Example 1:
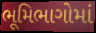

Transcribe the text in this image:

ભૂમિભાગોમાં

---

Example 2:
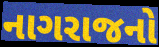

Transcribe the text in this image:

નાગરાજનો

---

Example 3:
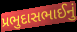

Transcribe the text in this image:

પ્રભુદાસભાઈનું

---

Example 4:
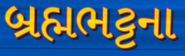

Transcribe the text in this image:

બ્રહ્મભટ્ટના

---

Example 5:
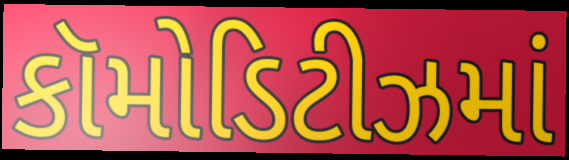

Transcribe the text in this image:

કૉમોડિટીઝમાં